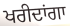
ਖਰੀਦਾਂਗਾ